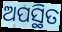
ଅପସ୍ଥିତ